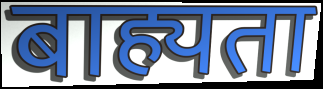
बाह्यता